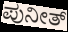
ಪುನೀತ್